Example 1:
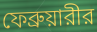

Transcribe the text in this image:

ফেব্রুয়ারীর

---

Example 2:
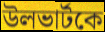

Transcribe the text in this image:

উলভার্টকে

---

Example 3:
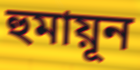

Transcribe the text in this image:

হুমায়ূন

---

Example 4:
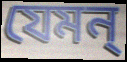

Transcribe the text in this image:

যেমন্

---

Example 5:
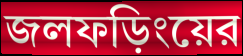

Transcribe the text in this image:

জলফড়িংয়ের